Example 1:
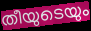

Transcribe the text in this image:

തീയുടെയും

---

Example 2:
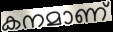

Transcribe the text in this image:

കനമാണ്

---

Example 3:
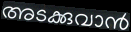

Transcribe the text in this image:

അടക്കുവാൻ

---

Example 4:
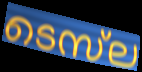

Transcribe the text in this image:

ടെസ്‌ല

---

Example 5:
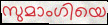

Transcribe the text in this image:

സുമാംഗിയെ